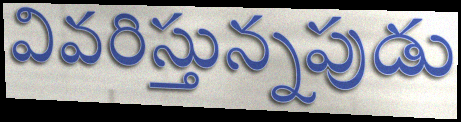
వివరిస్తున్నపుడు